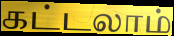
கட்டலாம்